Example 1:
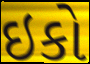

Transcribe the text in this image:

ઇકો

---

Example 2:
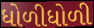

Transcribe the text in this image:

ધોળીધોળી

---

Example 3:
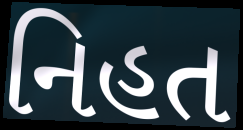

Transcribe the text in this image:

નિહત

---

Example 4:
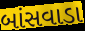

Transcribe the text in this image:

બાંસવાડા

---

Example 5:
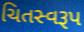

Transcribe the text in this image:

ચિતસ્વરૂપ